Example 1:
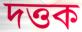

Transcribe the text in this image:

দত্তক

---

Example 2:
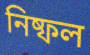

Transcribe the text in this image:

নিষ্ফল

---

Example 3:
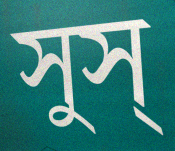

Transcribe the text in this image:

সুস্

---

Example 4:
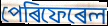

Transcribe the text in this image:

পেৰিফেৰেল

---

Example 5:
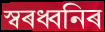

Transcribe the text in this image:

স্বৰধ্বনিৰ